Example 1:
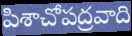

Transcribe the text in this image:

పిశాచోపద్రవాది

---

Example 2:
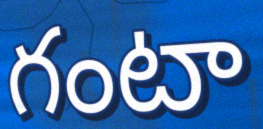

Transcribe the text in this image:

గంటా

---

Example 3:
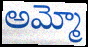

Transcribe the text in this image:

అమ్మో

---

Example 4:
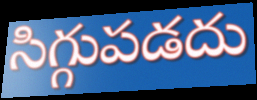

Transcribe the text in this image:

సిగ్గుపడదు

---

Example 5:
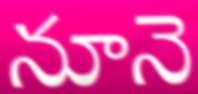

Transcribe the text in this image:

నూనె